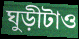
ঘুড়ীটাও